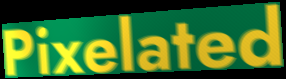
Pixelated